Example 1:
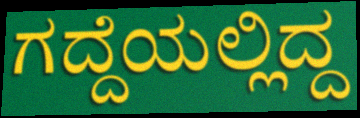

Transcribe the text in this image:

ಗದ್ದೆಯಲ್ಲಿದ್ದ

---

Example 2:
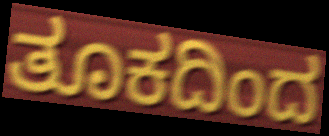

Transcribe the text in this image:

ತೂಕದಿಂದ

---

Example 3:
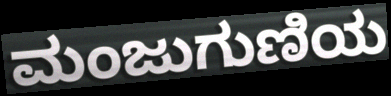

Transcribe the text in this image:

ಮಂಜುಗುಣಿಯ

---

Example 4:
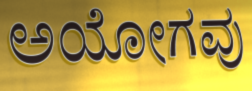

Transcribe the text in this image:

ಅಯೋಗವು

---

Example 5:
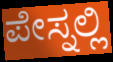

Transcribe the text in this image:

ಪೇಸ್ನಲ್ಲಿ